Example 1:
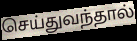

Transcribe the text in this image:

செய்துவந்தால்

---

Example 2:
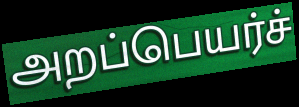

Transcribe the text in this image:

அறப்பெயர்ச்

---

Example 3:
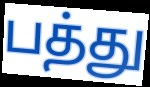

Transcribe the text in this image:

பத்து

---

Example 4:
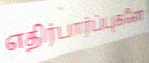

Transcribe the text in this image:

எதிர்பார்ப்புகளே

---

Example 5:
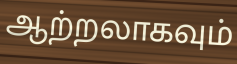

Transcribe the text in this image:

ஆற்றலாகவும்